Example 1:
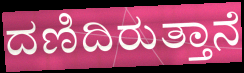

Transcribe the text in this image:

ದಣಿದಿರುತ್ತಾನೆ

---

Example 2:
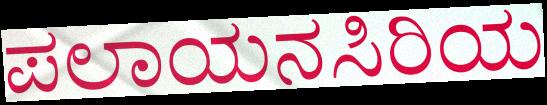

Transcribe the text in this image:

ಪಲಾಯನಸಿರಿಯ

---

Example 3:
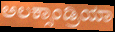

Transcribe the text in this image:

ಅಲಕ್ಸಾಂಡ್ರಿಯಾ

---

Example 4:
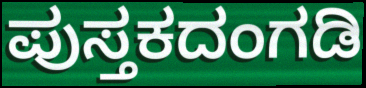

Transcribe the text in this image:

ಪುಸ್ತಕದಂಗಡಿ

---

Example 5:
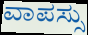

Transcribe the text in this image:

ವಾಪಸ್ಸು